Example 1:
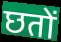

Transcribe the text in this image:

छतों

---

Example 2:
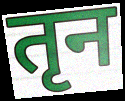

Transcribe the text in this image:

तृन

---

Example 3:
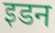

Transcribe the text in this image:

इडन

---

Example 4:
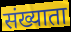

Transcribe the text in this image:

संख्याता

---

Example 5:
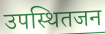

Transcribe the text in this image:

उपस्थितजन